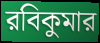
রবিকুমার